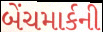
બેંચમાર્કની